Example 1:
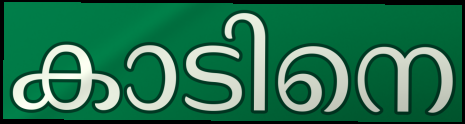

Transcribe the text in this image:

കാടിനെ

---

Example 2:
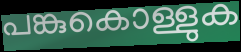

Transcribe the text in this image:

പങ്കുകൊള്ളുക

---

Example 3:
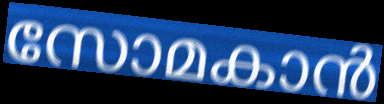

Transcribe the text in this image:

സോമകാൻ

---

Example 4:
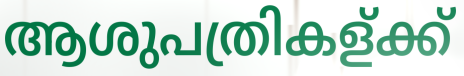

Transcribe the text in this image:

ആശുപത്രികള്ക്ക്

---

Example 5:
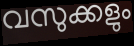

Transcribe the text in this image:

വസുക്കളും